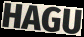
HAGU